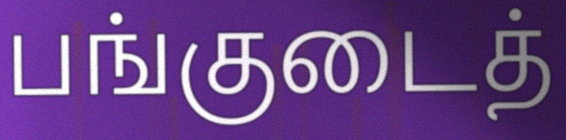
பங்குடைத்